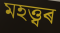
মহত্ত্বৰ